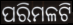
ପରିମଳଟି